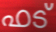
ഫട്